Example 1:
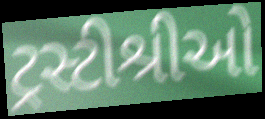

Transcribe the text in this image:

ટ્રસ્ટીશ્રીઓ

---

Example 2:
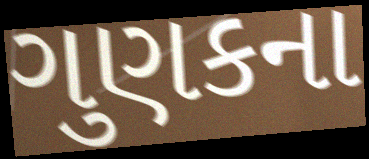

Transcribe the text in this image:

ગુણકના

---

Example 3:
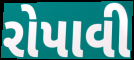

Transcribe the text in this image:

રોપાવી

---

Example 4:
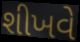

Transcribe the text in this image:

શીખવે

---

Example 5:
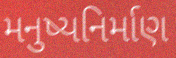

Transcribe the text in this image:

મનુષ્યનિર્માણ